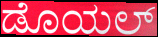
ಡೊಯಲ್